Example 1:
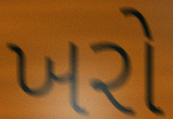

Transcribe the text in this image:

ખરો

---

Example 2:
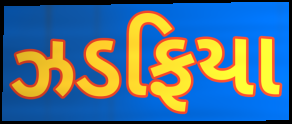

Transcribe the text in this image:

ઝડફિયા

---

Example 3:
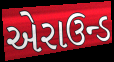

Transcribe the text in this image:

એરાઉન્ડ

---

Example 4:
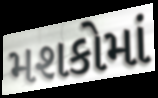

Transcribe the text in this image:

મશકોમાં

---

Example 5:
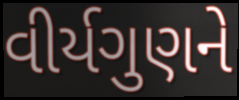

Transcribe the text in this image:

વીર્યગુણને